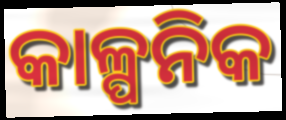
କାଳ୍ପନିକ